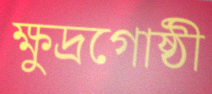
ক্ষুদ্রগোষ্ঠী